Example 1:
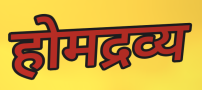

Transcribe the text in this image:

होमद्रव्य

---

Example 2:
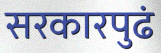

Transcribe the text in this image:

सरकारपुढं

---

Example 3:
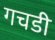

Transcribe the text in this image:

गचडी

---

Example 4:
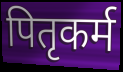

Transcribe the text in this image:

पितृकर्म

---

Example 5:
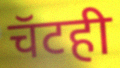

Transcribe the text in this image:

चॅटही